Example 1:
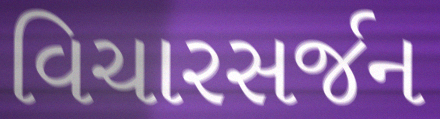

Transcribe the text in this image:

વિચારસર્જન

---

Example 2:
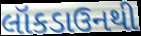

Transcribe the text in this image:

લૉકડાઉનથી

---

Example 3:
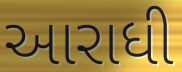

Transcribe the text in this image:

આરાધી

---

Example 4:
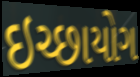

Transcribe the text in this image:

ઇચ્છાયોગ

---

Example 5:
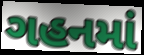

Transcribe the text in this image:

ગહનમાં